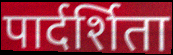
पार्दर्शिता